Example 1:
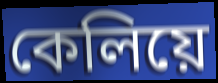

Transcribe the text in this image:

কেলিয়ে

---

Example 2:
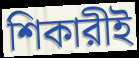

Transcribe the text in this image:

শিকারীই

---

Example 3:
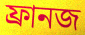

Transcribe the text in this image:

ফ্রানজ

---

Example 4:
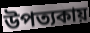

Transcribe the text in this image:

উপত্যকায়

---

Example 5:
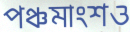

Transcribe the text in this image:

পঞ্চমাংশও